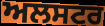
ਅਲਸਟਰ